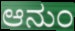
ಆನುಂ